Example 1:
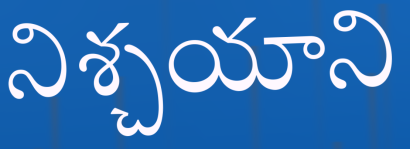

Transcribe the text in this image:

నిశ్చయాని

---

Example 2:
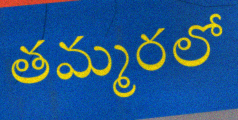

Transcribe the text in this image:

తమ్మరలో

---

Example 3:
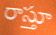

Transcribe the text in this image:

రాస్తూ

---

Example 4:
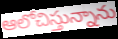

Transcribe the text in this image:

ఆలోచిస్తున్నాను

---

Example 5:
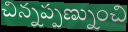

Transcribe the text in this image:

చిన్నప్పణ్నుంచి